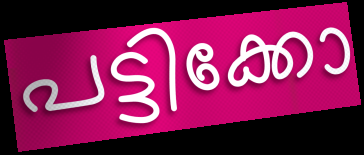
പട്ടിക്കോ